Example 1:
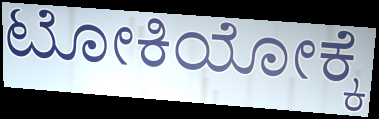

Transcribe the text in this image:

ಟೋಕಿಯೋಕ್ಕೆ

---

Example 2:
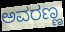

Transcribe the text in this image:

ಅವರಣ್ಣ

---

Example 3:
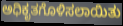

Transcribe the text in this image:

ಅಧಿಕೃತಗೊಳಿಸಲಾಯಿತು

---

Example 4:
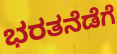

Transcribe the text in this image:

ಭರತನೆಡೆಗೆ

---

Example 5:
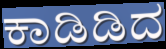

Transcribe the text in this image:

ಕಾಡಿಡಿದ